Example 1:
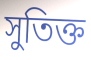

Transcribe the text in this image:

সুতিক্ত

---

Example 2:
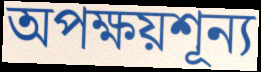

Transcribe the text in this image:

অপক্ষয়শূন্য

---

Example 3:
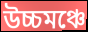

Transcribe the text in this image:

উচ্চমঞ্চে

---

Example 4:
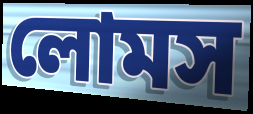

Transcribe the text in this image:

লোমস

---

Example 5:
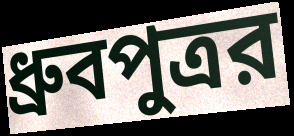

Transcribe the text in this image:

ধ্রুবপুত্রর